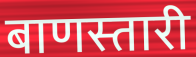
बाणस्तारी